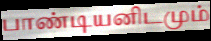
பாண்டியனிடமும்